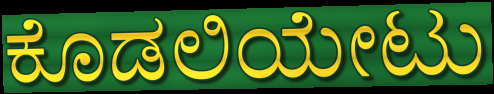
ಕೊಡಲಿಯೇಟು